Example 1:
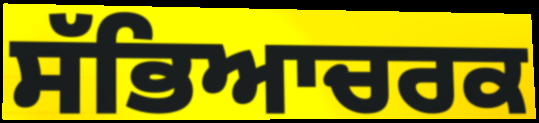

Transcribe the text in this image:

ਸੱਭਿਆਚਰਕ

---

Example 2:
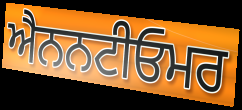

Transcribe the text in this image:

ਐਨਨਟੀਓਮਰ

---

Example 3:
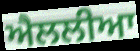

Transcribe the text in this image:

ਐਲਲੀਆ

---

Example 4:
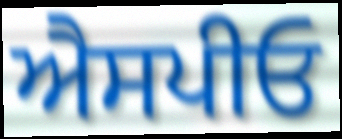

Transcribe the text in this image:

ਐਸਪੀਓ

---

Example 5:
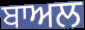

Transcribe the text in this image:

ਬਾਅਲ